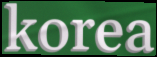
korea